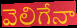
వెలిగేనా